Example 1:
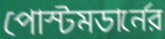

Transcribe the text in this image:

পোস্টমডার্নের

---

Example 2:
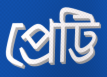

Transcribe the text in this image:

প্রেট্টি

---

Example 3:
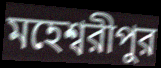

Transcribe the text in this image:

মহেশ্বরীপুর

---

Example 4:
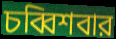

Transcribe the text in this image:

চব্বিশবার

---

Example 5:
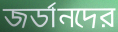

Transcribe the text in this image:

জর্ডানদের